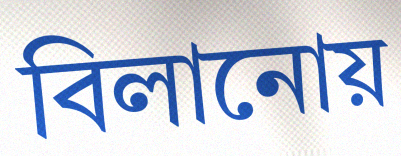
বিলানোয়